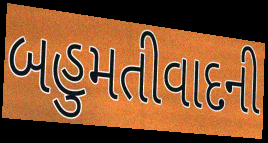
બહુમતીવાદની